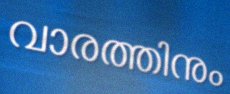
വാരത്തിനും